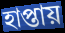
হাপ্তায়